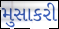
મુસાકરી